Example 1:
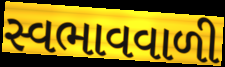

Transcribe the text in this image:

સ્વભાવવાળી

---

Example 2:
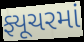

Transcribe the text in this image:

ફ્યૂચરમાં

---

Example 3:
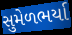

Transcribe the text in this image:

સુમેળભર્યા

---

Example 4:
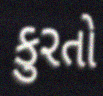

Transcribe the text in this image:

કુરતો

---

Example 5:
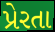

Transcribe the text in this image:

પ્રેરતા